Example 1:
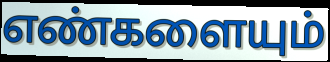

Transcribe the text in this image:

எண்களையும்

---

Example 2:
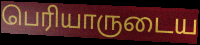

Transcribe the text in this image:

பெரியாருடைய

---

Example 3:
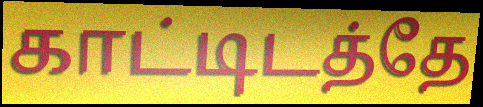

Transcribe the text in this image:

காட்டிடத்தே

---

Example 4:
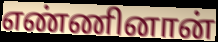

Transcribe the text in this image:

எண்ணினான்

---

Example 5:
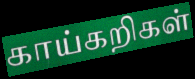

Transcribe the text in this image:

காய்கறிகள்